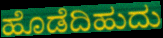
ಹೊಡೆದಿಹುದು